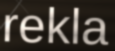
rekla